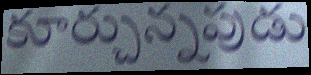
కూర్చున్నపుడు